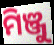
ମିଞ୍ଜୁ